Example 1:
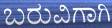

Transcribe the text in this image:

ಬರುವಿಗಾಗಿ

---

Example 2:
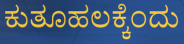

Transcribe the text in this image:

ಕುತೂಹಲಕ್ಕೆಂದು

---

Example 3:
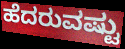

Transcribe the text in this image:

ಹೆದರುವಷ್ಟು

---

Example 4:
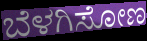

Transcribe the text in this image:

ಬೆಳಗಿಸೋಣ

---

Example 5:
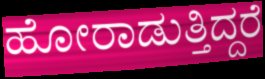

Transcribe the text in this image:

ಹೋರಾಡುತ್ತಿದ್ದರೆ